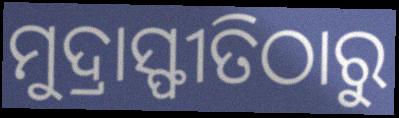
ମୁଦ୍ରାସ୍ଫୀତିଠାରୁ